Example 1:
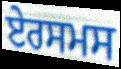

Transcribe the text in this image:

ਏਰਸਮਸ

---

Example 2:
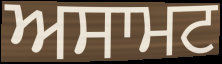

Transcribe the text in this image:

ਅਸਾਮਟ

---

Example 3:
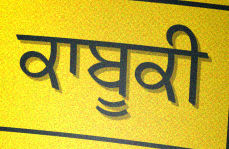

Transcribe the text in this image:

ਕਾਬੂਕੀ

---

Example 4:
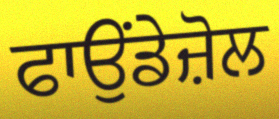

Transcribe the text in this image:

ਫਾਉਂਡੇਜ਼ੋਲ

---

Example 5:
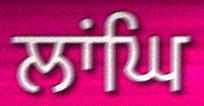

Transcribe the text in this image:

ਲਾਂਘਿ